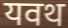
यवथ